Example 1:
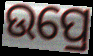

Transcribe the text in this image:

ଉପ୍ରେ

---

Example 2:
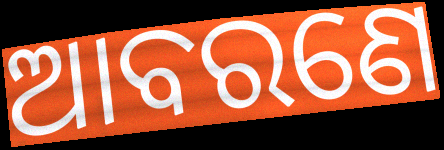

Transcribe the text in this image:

ଆବରଣେ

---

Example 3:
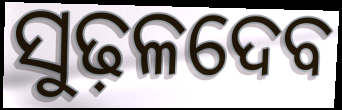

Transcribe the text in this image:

ସୁଢ଼ଳଦେବ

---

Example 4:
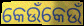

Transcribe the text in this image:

କେଉଁକେଉଁ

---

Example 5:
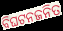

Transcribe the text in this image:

ବିଘଟନଜନିତ